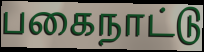
பகைநாட்டு